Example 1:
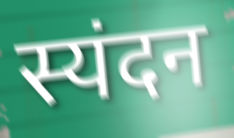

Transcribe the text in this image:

स्यंदन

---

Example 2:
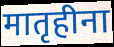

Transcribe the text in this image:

मातृहीना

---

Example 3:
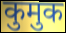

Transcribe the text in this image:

कुमुक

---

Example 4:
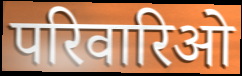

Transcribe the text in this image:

परिवारिओ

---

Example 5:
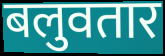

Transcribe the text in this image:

बलुवतार